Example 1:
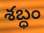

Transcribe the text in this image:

శబ్ధం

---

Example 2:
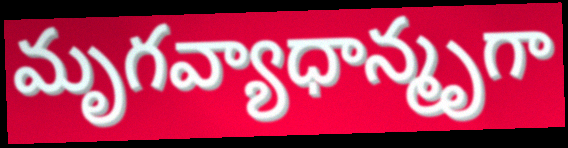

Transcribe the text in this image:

మృగవ్యాధాన్మృగా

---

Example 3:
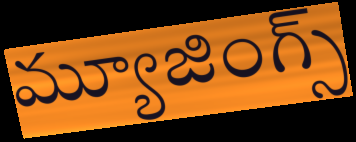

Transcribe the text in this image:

మ్యూజింగ్స్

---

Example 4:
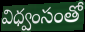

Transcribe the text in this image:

విధ్వంసంతో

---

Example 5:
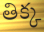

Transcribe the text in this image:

తిక్క